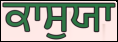
ਕਾਸੁਯਾ